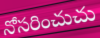
నోసరించుచు